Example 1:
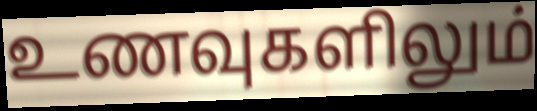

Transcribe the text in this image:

உணவுகளிலும்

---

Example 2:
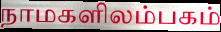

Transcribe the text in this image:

நாமகளிலம்பகம்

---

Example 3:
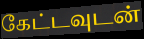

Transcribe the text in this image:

கேட்டவுடன்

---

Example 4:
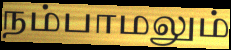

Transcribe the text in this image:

நம்பாமலும்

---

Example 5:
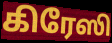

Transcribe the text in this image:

கிரேஸி